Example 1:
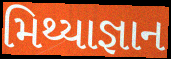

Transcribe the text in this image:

મિથ્યાજ્ઞાન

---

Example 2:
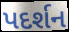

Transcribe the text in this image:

પદર્શન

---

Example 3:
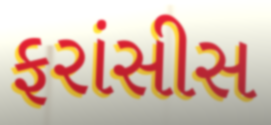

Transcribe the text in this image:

ફરાંસીસ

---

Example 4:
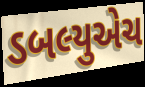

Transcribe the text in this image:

ડબલ્યુએચ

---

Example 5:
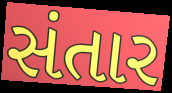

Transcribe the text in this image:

સંતાર